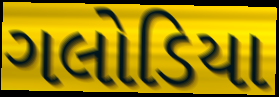
ગલોડિયા